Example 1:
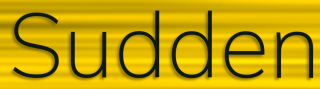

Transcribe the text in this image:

Sudden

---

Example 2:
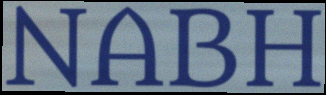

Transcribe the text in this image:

NABH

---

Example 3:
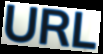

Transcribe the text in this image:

URL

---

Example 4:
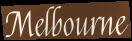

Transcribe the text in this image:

Melbourne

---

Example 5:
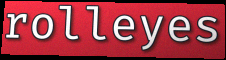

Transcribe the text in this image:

rolleyes